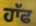
ਹਾੱਫ